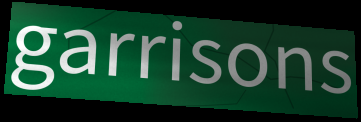
garrisons